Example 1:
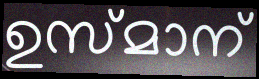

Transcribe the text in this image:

ഉസ്മാന്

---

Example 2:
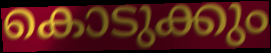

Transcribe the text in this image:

കൊടുക്കും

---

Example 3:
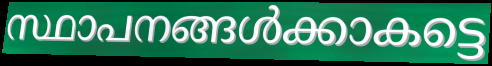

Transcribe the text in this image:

സ്ഥാപനങ്ങൾക്കാകട്ടെ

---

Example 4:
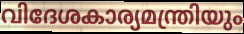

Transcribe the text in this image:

വിദേശകാര്യമന്ത്രിയും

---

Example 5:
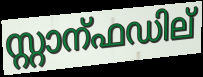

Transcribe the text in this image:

സ്റ്റാന്ഫഡില്